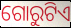
ଗୋରୁଟିଏ